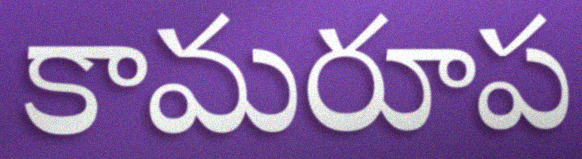
కామరూప